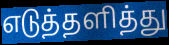
எடுத்தளித்து